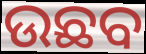
ଉଛବ